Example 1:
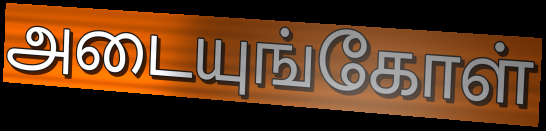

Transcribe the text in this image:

அடையுங்கோள்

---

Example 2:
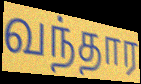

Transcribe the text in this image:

வந்தார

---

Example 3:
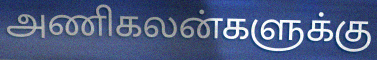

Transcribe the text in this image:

அணிகலன்களுக்கு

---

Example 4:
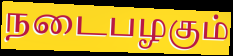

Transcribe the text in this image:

நடைபழகும்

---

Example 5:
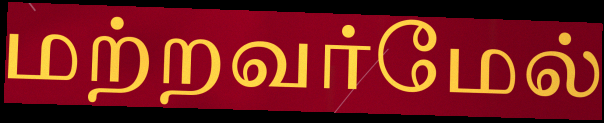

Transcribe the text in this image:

மற்றவர்மேல்